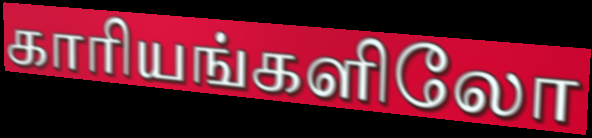
காரியங்களிலோ